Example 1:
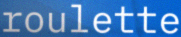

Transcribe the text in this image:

roulette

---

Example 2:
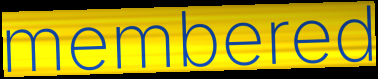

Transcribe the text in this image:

membered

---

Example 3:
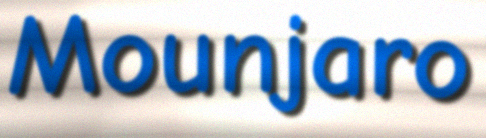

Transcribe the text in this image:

Mounjaro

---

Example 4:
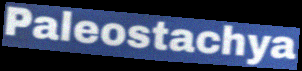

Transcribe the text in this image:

Paleostachya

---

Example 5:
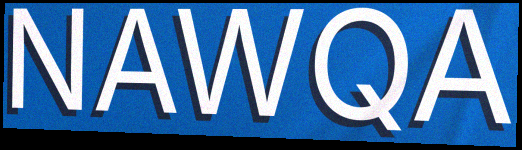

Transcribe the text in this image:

NAWQA